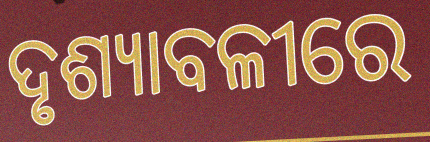
ଦୃଶ୍ୟାବଳୀରେ